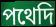
পথেদি